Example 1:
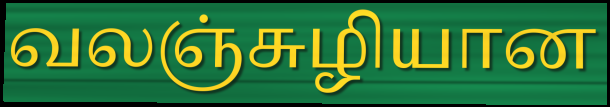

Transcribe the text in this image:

வலஞ்சுழியான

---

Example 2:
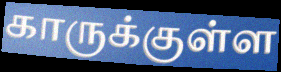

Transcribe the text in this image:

காருக்குள்ள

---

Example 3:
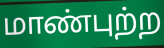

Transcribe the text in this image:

மாண்புற்ற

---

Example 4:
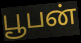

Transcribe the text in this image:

பூபன்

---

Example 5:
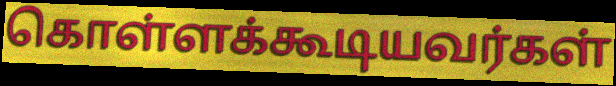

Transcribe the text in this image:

கொள்ளக்கூடியவர்கள்